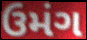
ઉમંગ